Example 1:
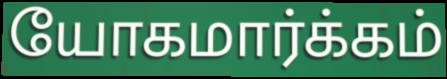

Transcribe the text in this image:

யோகமார்க்கம்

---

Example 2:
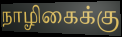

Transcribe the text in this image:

நாழிகைக்கு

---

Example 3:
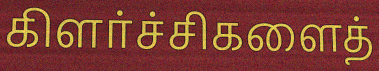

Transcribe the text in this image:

கிளர்ச்சிகளைத்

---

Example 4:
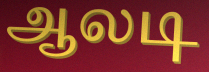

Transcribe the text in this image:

ஆலடி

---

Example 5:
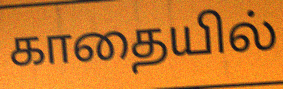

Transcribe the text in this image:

காதையில்